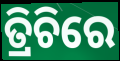
ତ୍ରିଚିରେ